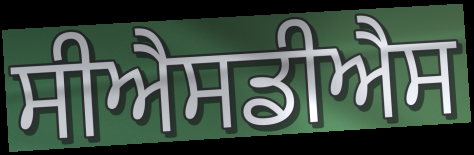
ਸੀਐਸਡੀਐਸ